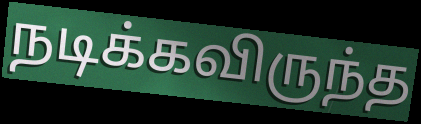
நடிக்கவிருந்த